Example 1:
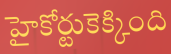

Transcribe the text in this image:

హైకోర్టుకెక్కింది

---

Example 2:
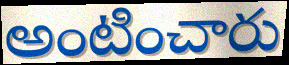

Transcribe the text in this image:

అంటించారు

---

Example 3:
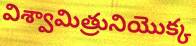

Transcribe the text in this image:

విశ్వామిత్రునియొక్క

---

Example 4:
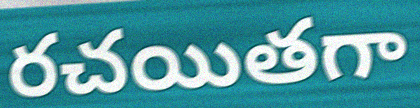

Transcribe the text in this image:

రచయితగా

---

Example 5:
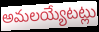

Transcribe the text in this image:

అమలయ్యేటట్లు